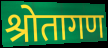
श्रोतागण